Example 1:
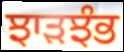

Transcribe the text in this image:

ਝਾੜਝੰਭ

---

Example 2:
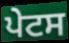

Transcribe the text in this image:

ਪੇਟਸ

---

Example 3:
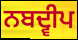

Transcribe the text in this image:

ਨਬਦ੍ਵੀਪ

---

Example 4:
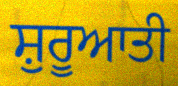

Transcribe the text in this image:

ਸ਼ੁਰੂਆਤੀ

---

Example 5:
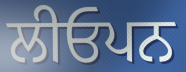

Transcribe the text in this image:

ਲੀਓਪਨ